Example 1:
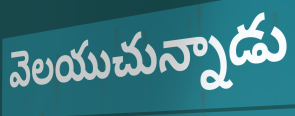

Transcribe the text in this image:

వెలయుచున్నాడు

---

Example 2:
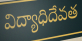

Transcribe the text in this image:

విద్యాధిదేవత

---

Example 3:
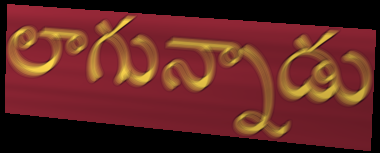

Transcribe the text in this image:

లాగున్నాడు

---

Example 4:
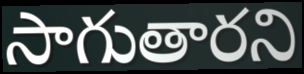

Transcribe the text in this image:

సాగుతారని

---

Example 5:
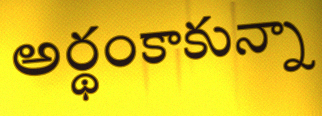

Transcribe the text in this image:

అర్థంకాకున్నా